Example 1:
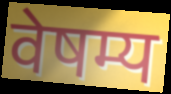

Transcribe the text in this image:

वेषम्य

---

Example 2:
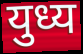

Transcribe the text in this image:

युध्य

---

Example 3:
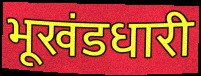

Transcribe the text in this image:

भूखंडधारी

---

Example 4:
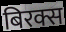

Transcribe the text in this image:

बिरक्स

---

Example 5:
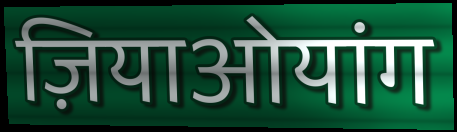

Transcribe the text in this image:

ज़ियाओयांग